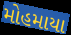
મોહમાયા